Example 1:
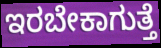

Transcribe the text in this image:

ಇರಬೇಕಾಗುತ್ತೆ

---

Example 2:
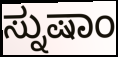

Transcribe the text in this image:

ಸ್ನುಷಾಂ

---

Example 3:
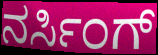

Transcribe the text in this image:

ನರ್ಸಿಂಗ್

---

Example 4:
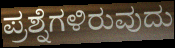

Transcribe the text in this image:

ಪ್ರಶ್ನೆಗಳಿರುವುದು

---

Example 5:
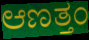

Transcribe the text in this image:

ಆಣತ್ತಂ